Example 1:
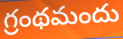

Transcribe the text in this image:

గ్రంథమందు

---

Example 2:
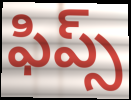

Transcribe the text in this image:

ఫిప్స్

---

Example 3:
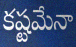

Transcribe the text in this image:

కష్టమేనా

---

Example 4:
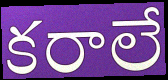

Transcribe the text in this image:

కరాలే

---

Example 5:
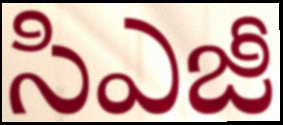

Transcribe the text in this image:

సిఎజీ